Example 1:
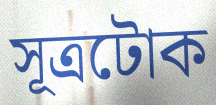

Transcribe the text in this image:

সূত্ৰটোক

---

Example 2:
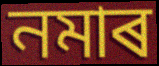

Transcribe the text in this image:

নমাৰ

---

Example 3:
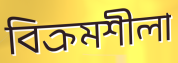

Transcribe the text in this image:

বিক্ৰমশীলা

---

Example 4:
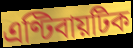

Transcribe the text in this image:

এণ্টিবায়টিক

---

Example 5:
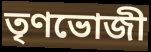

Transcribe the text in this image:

তৃণভোজী